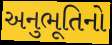
અનુભૂતિનો